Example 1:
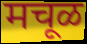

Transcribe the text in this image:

मचूळ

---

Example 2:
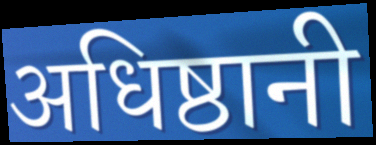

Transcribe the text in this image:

अधिष्ठानी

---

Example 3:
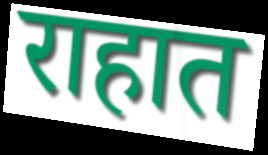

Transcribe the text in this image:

राहात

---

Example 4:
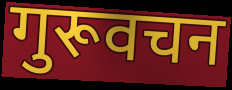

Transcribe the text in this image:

गुरूवचन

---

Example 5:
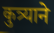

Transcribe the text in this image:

कुत्र्याने